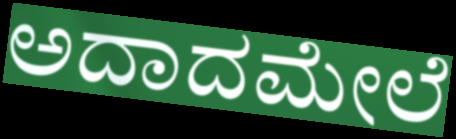
ಅದಾದಮೇಲೆ